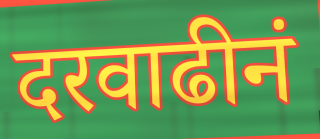
दरवाढीनं